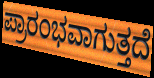
ಪ್ರಾರಂಭವಾಗುತ್ತದೆ